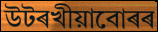
উটৰখীয়াবোৰৰ